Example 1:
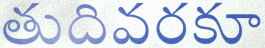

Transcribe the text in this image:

తుదివరకూ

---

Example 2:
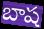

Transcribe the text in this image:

బాష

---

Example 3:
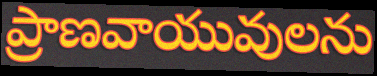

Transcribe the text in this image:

ప్రాణవాయువులను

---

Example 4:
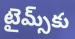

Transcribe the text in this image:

టైమ్స్‌కు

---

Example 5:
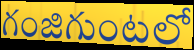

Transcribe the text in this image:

గంజిగుంటలో